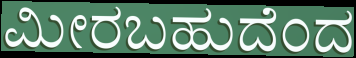
ಮೀರಬಹುದೆಂದ